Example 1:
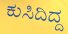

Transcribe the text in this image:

ಕುಸಿದಿದ್ದ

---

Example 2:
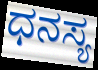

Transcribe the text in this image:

ಧನಸ್ಯ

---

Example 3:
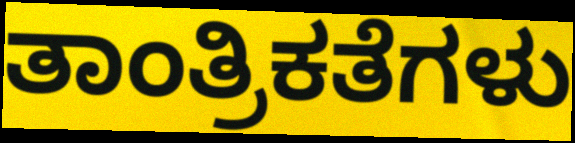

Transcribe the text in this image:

ತಾಂತ್ರಿಕತೆಗಳು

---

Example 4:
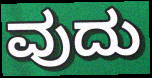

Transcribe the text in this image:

ವುದು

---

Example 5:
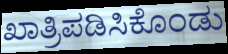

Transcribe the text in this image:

ಖಾತ್ರಿಪಡಿಸಿಕೊಂಡು